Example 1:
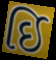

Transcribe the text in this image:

ઈિ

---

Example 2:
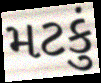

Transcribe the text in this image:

મટકું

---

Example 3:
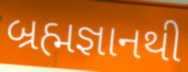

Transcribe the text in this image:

બ્રહ્મજ્ઞાનથી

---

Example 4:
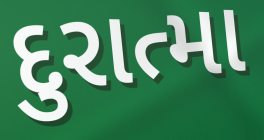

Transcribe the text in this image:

દુરાત્મા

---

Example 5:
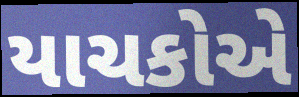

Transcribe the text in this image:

યાચકોએ